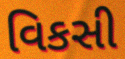
વિકસી